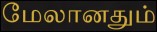
மேலானதும்